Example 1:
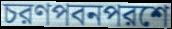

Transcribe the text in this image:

চরণপবনপরশে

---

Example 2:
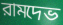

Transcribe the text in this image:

রামদেভ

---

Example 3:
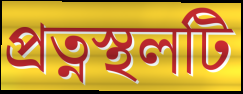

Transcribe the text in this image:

প্রত্নস্থলটি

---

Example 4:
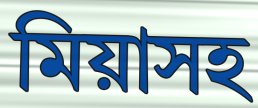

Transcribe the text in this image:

মিয়াসহ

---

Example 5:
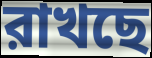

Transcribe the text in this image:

রাখছে